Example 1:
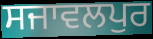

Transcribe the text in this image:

ਸਜਾਵਲਪੁਰ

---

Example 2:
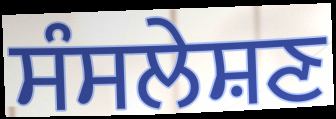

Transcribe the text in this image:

ਸੰਸਲੇਸ਼ਣ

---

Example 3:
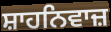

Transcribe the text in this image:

ਸ਼ਾਹਨਿਵਾਜ਼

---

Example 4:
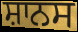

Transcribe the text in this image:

ਸ਼ਾਨਸ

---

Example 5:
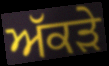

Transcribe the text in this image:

ਅੱਕੜੇ